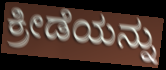
ಕ್ರೀಡೆಯನ್ನು